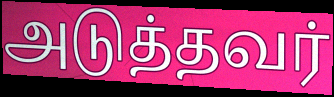
அடுத்தவர்